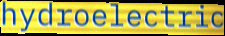
hydroelectric